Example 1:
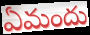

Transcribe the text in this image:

ఏమందు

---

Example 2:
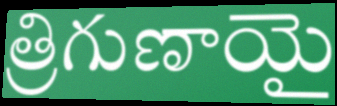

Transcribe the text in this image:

త్రిగుణాయై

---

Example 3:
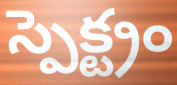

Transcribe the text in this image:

స్పెక్ట్రం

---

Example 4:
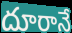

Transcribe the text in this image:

దూరానే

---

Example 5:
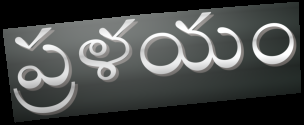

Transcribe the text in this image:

ప్రళయం